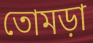
তোমড়া